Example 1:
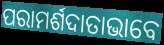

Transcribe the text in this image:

ପରାମର୍ଶଦାତାଭାବେ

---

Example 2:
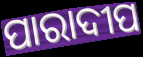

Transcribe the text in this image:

ପାରାଦୀପ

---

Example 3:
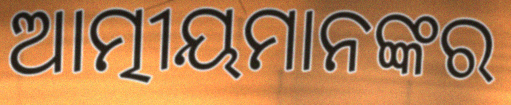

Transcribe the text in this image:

ଆତ୍ମୀୟମାନଙ୍କର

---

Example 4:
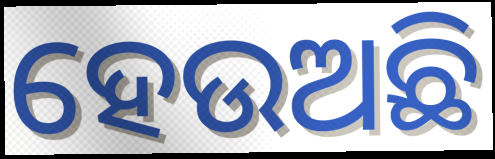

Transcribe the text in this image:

ହେଉଅଛି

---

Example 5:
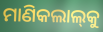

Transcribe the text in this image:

ମାଣିକଲାଲ୍‍କୁ